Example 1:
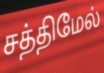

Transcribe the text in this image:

சத்திமேல்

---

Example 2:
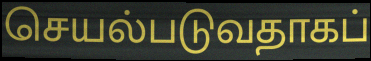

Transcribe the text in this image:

செயல்படுவதாகப்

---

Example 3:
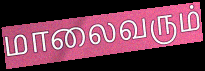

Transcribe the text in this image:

மாலைவரும்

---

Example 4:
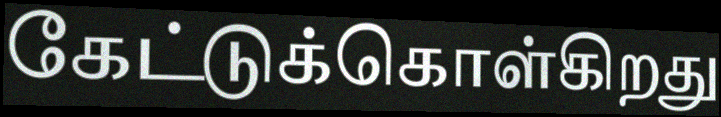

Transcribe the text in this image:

கேட்டுக்கொள்கிறது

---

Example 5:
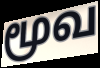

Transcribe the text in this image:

மூவ